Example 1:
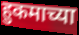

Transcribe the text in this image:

हुकमाच्या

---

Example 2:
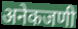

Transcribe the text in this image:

अनेकजणी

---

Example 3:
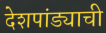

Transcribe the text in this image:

देशपांड्याची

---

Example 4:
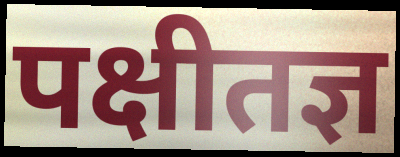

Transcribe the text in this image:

पक्षीतज्ञ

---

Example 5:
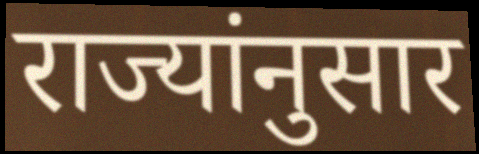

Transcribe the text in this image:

राज्यांनुसार